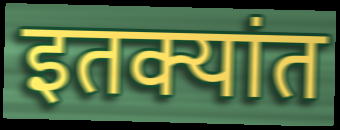
इतक्यांत